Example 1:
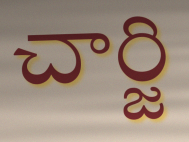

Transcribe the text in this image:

చార్జి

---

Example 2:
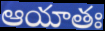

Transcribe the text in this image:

ఆయాతః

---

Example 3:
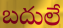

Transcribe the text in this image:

బదులే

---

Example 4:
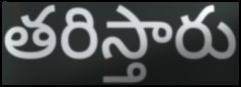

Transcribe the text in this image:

తరిస్తారు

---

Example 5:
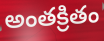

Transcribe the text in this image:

అంతక్రితం